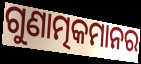
ଗୁଣାତ୍ମକମାନର